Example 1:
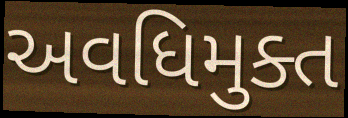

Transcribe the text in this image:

અવધિમુક્ત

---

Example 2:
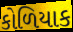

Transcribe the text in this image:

કોળિયાક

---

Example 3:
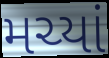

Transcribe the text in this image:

મચ્યાં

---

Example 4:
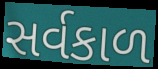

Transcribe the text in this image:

સર્વકાળ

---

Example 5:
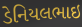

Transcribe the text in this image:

ડેનિયલભાઇ